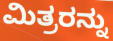
ಮಿತ್ರರನ್ನು